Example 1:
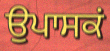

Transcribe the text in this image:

ਉਪਾਸਕਂ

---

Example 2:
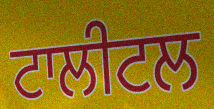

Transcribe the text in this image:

ਟਾਲੀਟਲ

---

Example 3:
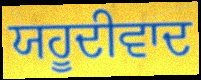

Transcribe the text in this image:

ਯਹੂਦੀਵਾਦ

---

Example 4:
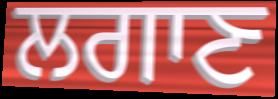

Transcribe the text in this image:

ਲਗਾਣ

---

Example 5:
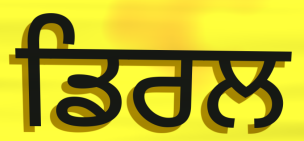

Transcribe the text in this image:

ਡਿਰਲ